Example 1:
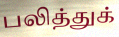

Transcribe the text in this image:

பலித்துக்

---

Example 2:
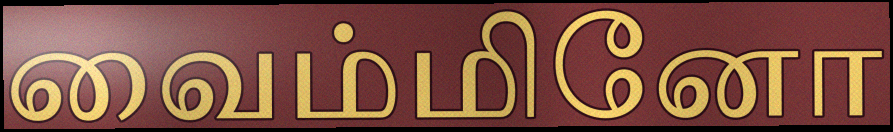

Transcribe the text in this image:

வைம்மினோ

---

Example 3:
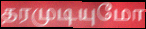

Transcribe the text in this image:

தரமுடியுமோ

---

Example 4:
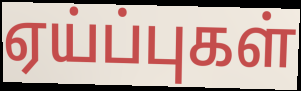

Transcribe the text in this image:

ஏய்ப்புகள்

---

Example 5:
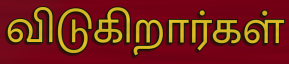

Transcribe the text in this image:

விடுகிறார்கள்